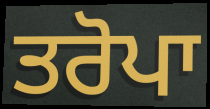
ਤਰੋਪਾ